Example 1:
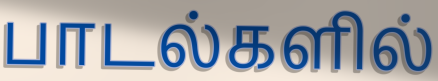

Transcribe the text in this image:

பாடல்களில்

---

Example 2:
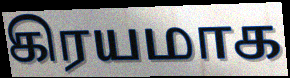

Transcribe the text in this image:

கிரயமாக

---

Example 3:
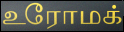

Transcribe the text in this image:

உரோமக்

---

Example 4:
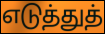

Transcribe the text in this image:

எடுத்துத்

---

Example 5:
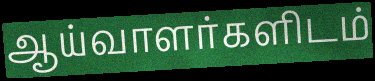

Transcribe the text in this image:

ஆய்வாளர்களிடம்